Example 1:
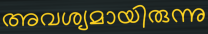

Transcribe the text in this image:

അവശ്യമായിരുന്നു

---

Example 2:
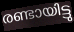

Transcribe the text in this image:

രണ്ടായിട്ടു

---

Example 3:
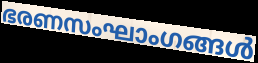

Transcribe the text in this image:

ഭരണസംഘാംഗങ്ങൾ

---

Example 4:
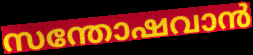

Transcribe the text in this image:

സന്തോഷവാൻ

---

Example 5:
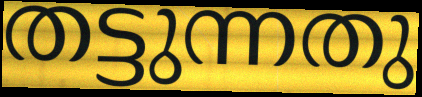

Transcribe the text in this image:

തട്ടുന്നതു